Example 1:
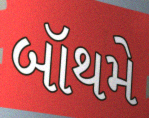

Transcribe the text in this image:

બૉથમે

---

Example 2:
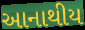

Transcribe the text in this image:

આનાથીય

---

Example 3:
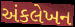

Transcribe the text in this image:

અંકલેખન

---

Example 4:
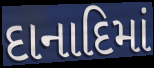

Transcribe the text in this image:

દાનાદિમાં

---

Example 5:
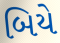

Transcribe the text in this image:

બિયે